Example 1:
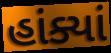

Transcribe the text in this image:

હાંક્યાં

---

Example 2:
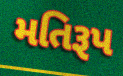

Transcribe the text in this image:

મતિરૂપ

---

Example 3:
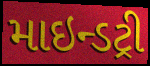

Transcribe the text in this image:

માઇન્ડટ્રી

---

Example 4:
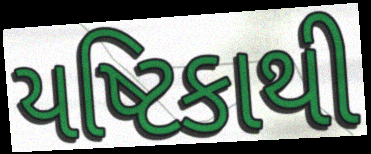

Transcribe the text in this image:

યષ્ટિકાથી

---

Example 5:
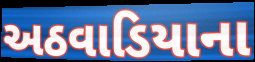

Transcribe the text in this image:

અઠવાડિયાના